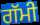
ਗੱਮੀ